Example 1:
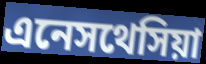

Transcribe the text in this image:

এনেসথেসিয়া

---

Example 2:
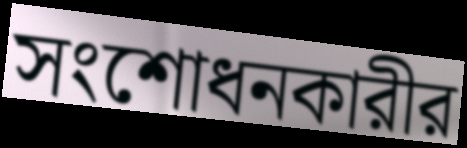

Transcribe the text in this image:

সংশোধনকারীর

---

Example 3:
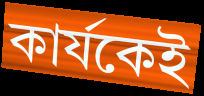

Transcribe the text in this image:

কার্যকেই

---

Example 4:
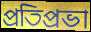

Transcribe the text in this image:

প্রতিপ্রভা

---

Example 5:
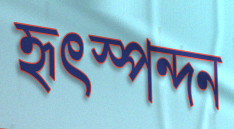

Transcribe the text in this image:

হৃৎস্পন্দন